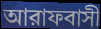
আরাফবাসী